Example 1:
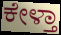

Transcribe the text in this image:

ಕೇಳ್ತಾ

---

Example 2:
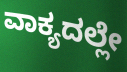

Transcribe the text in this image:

ವಾಕ್ಯದಲ್ಲೇ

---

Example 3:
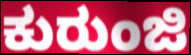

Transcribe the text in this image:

ಕುರುಂಜಿ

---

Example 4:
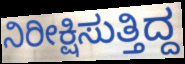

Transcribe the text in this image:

ನಿರೀಕ್ಷಿಸುತ್ತಿದ್ದ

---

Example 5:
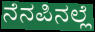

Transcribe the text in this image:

ನೆನಪಿನಲ್ಲೆ